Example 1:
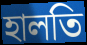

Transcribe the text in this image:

হালতি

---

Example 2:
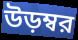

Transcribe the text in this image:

উড়ম্বর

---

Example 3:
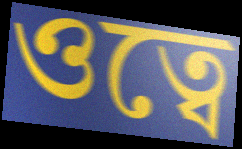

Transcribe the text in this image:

ওত্বে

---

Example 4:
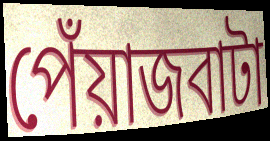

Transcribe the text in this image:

পেঁয়াজবাটা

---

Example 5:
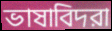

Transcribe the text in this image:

ভাষাবিদরা